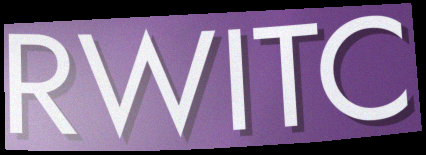
RWITC